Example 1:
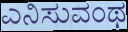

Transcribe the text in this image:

ಎನಿಸುವಂಥ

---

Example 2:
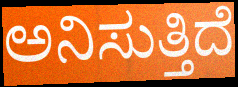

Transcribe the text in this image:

ಅನಿಸುತ್ತಿದೆ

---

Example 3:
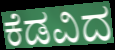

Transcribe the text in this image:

ಕೆಡವಿದ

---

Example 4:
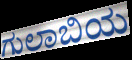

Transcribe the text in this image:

ಗುಲಾಬಿಯ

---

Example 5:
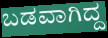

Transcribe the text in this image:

ಬಡವಾಗಿದ್ದ